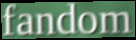
fandom